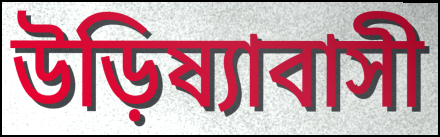
উড়িষ্যাবাসী